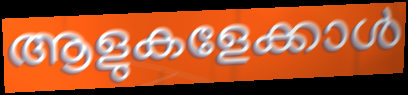
ആളുകളേക്കാൾ